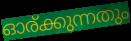
ഓര്ക്കുന്നതും